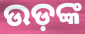
ଉଡ଼ଙ୍କ